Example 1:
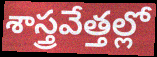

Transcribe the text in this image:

శాస్త్రవేత్తల్లో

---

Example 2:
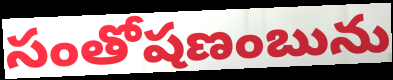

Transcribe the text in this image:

సంతోషణంబును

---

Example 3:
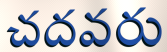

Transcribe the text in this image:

చదవరు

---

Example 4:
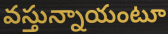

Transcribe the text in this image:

వస్తున్నాయంటూ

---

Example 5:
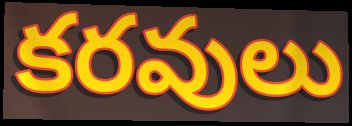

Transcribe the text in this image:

కరవులు